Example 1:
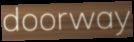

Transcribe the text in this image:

doorway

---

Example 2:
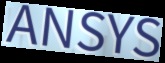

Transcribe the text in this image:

ANSYS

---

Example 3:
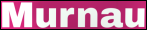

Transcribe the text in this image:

Murnau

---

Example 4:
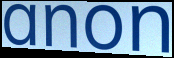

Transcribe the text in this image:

anon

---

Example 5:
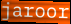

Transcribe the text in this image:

jaroor